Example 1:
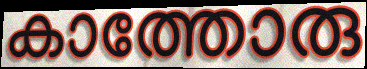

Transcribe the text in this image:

കാത്തോരു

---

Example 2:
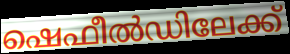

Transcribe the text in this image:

ഷെഫീൽഡിലേക്ക്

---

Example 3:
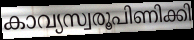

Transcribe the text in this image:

കാവ്യസ്വരൂപിണിക്കി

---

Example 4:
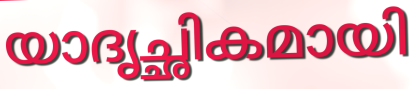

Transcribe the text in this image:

യാദൃച്ഛികമായി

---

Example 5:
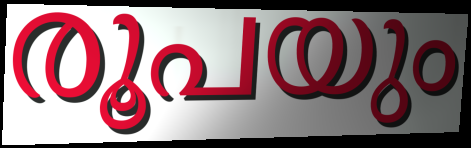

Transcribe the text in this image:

രൂപയും